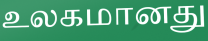
உலகமானது